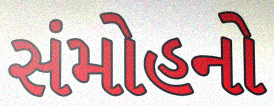
સંમોહનો